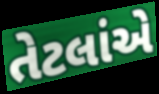
તેટલાંએ